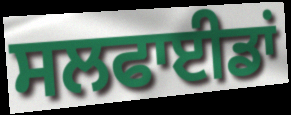
ਸਲਫਾਈਡਾਂ